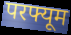
परफ्यूम